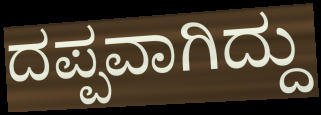
ದಪ್ಪವಾಗಿದ್ದು